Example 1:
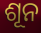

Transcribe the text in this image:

ଶୂନ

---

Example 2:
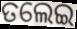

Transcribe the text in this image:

ତଲେଇ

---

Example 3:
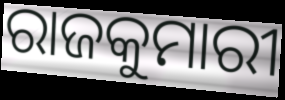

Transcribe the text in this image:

ରାଜକୁମାରୀ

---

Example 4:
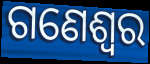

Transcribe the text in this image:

ଗଣେଶ୍ୱର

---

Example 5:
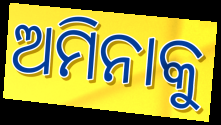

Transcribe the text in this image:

ଅମିନାକୁ